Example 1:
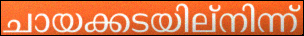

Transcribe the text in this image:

ചായക്കടയില്നിന്ന്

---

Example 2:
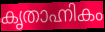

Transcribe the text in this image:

കൃതാഹ്നികം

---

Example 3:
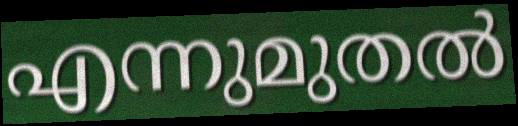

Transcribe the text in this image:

എന്നുമുതൽ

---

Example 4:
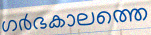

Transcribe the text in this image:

ഗർഭകാലത്തെ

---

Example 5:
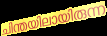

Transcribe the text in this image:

ചിന്തയിലായിരുന്ന